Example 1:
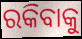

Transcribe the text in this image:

ରକିବାକୁ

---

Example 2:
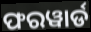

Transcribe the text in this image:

ଫରୱାର୍ଡ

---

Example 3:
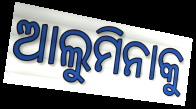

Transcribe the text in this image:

ଆଲୁମିନାକୁ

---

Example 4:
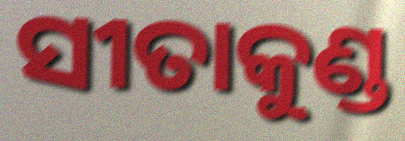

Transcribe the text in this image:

ସୀତାକୁଣ୍ଡ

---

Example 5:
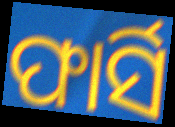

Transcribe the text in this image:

ଫାର୍ସି